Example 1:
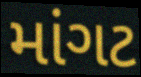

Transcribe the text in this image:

માંગટ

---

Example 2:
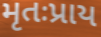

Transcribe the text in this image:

મૃતઃપ્રાય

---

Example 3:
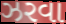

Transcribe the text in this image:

ઝરવા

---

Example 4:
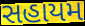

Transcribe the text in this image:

સહાયમ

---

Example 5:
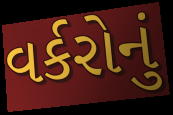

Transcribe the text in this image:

વર્કરોનું